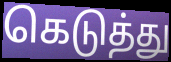
கெடுத்து